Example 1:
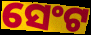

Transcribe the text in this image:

ସେଂଟ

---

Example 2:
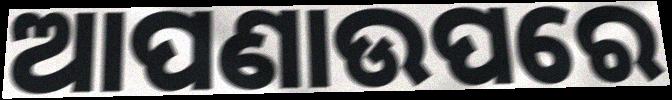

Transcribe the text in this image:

ଆପଣାଉପରେ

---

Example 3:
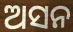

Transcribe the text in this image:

ଅସନ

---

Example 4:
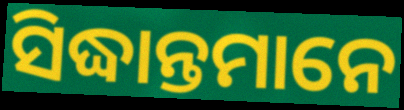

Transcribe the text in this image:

ସିଦ୍ଧାନ୍ତମାନେ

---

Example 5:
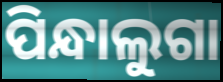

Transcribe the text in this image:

ପିନ୍ଧାଲୁଗା